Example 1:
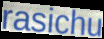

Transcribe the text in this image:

rasichu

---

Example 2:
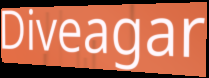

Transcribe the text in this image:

Diveagar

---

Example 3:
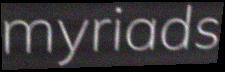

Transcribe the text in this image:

myriads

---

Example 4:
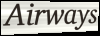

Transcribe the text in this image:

Airways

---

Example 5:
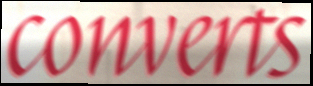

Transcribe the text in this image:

converts